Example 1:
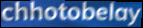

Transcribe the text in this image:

chhotobelay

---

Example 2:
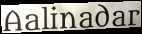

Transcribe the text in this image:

Aalinadar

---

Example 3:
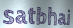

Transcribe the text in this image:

satbhai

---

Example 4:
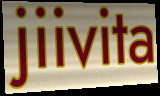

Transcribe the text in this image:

jiivita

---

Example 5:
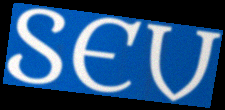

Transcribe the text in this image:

SEU